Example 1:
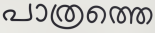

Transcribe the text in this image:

പാത്രത്തെ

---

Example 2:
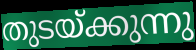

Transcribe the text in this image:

തുടയ്ക്കുന്നു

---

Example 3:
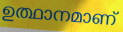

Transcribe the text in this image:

ഉത്ഥാനമാണ്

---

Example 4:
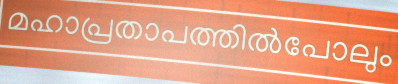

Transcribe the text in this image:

മഹാപ്രതാപത്തിൽപോലും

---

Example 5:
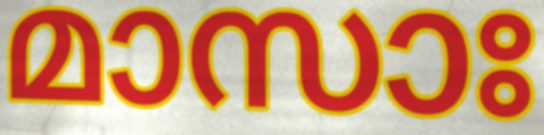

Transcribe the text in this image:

മാസാഃ